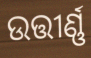
ଉତ୍ତୀର୍ଣ୍ଣ